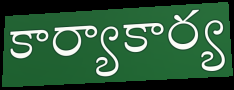
కార్యాకార్య